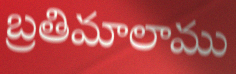
బ్రతిమాలాము